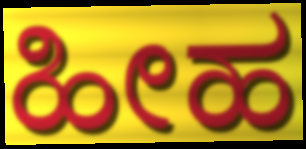
ಹೀಹ